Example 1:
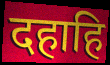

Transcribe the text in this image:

दहाहि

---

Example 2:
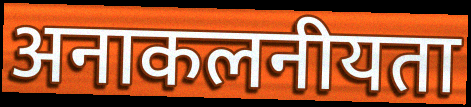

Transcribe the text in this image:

अनाकलनीयता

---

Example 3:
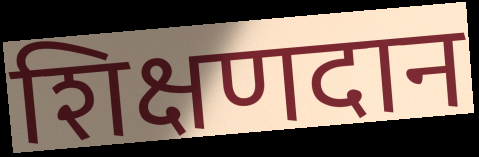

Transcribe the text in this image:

शिक्षणदान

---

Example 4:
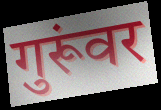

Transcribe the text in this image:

गुरूंवर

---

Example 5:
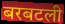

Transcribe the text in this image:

बरबटली